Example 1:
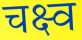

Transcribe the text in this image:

चक्ष्व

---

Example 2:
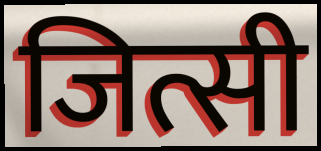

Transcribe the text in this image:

जित्सी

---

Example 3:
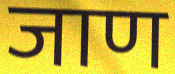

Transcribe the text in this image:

जाण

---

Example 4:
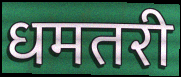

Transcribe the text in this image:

धमतरी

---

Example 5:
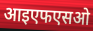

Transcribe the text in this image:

आइएफएसओ